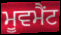
ਮੂਵਮੈਂਟ